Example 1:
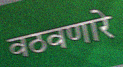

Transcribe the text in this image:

वठवणारे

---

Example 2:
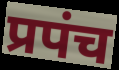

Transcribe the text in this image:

प्रपंच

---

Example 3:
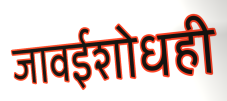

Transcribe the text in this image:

जावईशोधही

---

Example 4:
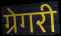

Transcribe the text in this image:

ग्रेगरी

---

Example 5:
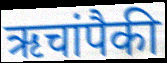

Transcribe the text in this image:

ऋचांपैकी